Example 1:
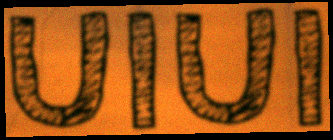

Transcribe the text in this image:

UIUI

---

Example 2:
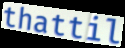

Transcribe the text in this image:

thattil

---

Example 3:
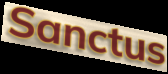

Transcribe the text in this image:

Sanctus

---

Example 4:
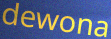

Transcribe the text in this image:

dewona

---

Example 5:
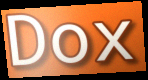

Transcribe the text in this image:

Dox